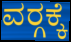
ವರ‍್ಗಕ್ಕೆ